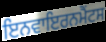
ਇਨਵਾਇਰਨਮੈਂਟਸ